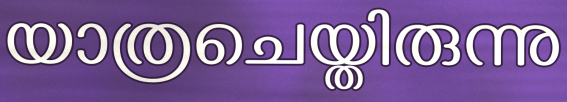
യാത്രചെയ്തിരുന്നു